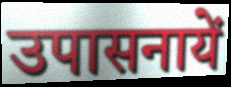
उपासनायें